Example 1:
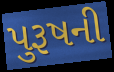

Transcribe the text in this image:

પુરૂષની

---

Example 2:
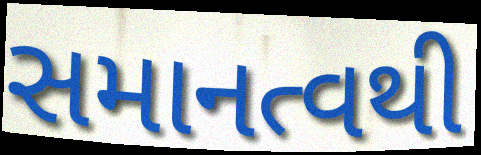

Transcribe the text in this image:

સમાનત્વથી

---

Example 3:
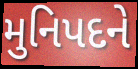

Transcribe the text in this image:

મુનિપદને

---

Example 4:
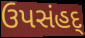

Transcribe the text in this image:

ઉપસંહદ્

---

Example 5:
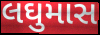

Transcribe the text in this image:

લઘુમાસ